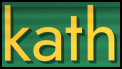
kath